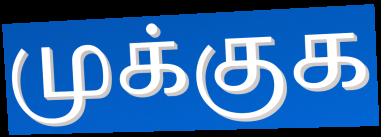
முக்குக